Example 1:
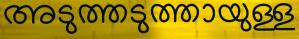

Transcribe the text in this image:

അടുത്തടുത്തായുള്ള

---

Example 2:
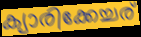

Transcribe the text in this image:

ക്യാരിക്കേച്ചര്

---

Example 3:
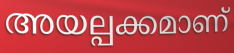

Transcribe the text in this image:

അയല്പക്കമാണ്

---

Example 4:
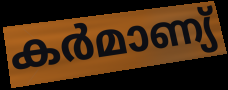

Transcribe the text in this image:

കർമാണ്യ്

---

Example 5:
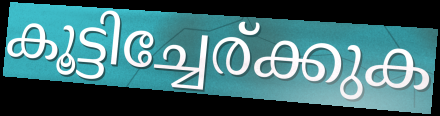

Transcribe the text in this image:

കൂട്ടിച്ചേര്ക്കുക